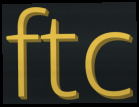
ftc